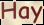
Hay